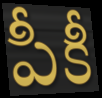
పీకీ